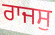
ਰਾਜਸੁ